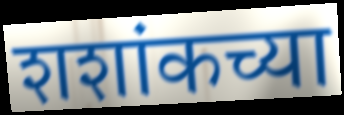
शशांकच्या